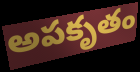
అపకృతం